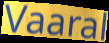
Vaaral